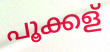
പൂക്കള്